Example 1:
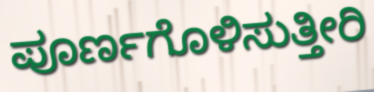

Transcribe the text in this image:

ಪೂರ್ಣಗೊಳಿಸುತ್ತೀರಿ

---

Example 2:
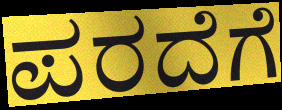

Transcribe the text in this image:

ಪರದೆಗೆ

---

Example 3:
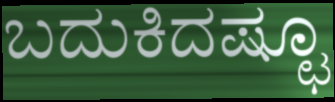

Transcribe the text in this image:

ಬದುಕಿದಷ್ಟೂ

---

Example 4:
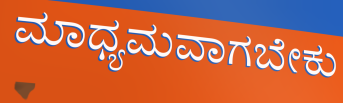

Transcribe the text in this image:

ಮಾಧ್ಯಮವಾಗಬೇಕು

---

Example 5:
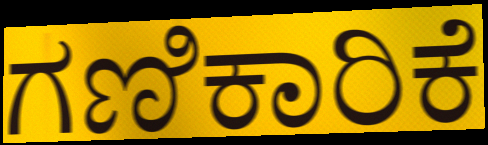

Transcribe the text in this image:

ಗಣಿಕಾರಿಕೆ